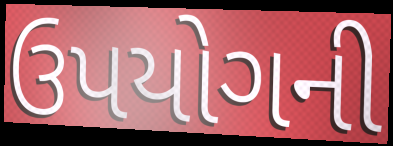
ઉપયોગની